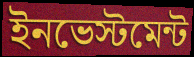
ইনভেস্টমেন্ট